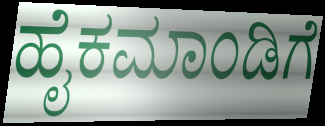
ಹೈಕಮಾಂಡಿಗೆ